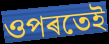
ওপৰতেই